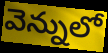
వెన్నులో